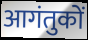
आगंतुकों